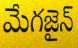
మేగజైన్